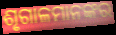
ଶୃଗାଳମାନଙ୍କର